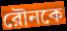
রৌনকে